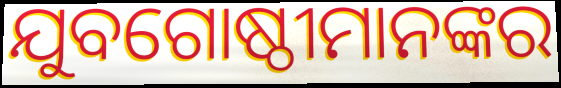
ଯୁବଗୋଷ୍ଠୀମାନଙ୍କର